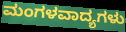
ಮಂಗಳವಾದ್ಯಗಳು